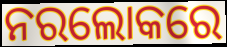
ନରଲୋକରେ